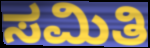
ಸಮಿತಿ